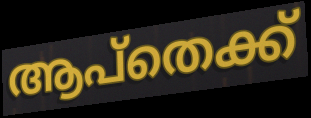
ആപ്തെക്ക്